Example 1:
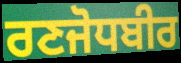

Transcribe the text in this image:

ਰਣਜੋਧਬੀਰ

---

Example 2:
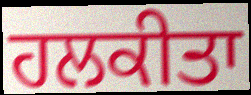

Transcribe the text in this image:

ਹਲਕੀਤਾ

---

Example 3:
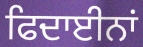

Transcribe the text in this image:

ਫਿਦਾਈਨਾਂ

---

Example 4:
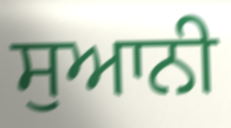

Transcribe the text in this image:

ਸੁਆਨੀ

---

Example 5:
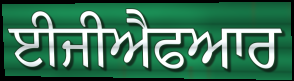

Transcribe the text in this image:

ਈਜੀਐਫਆਰ